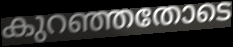
കുറഞ്ഞതോടെ